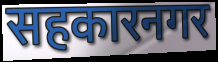
सहकारनगर